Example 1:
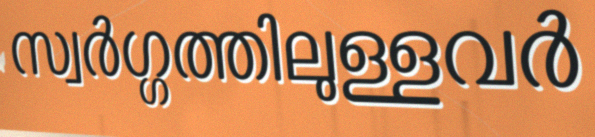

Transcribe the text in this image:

സ്വർഗ്ഗത്തിലുള്ളവർ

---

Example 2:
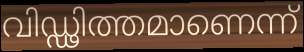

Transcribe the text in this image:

വിഡ്ഢിത്തമാണെന്ന്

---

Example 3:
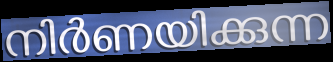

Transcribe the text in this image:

നിർണയിക്കുന്ന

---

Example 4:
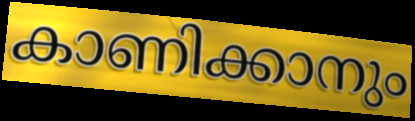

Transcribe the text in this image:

കാണിക്കാനും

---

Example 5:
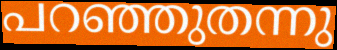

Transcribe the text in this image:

പറഞ്ഞുതന്നു